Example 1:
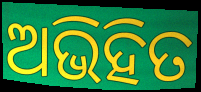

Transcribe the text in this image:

ଅଭିହିତ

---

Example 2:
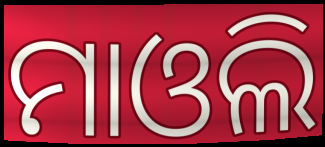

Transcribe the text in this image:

ମାଓଲି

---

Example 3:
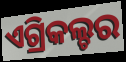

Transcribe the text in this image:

ଏଗ୍ରିକଲ୍ଚର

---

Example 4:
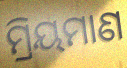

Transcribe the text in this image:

ମ୍ରିୟମାଣ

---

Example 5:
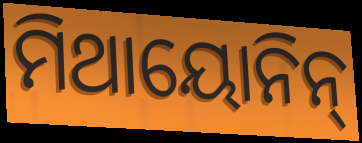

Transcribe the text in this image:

ମିଥାୟୋନିନ୍